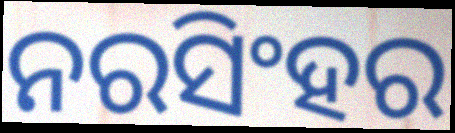
ନରସିଂହର